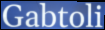
Gabtoli